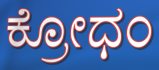
ಕ್ರೋಧಂ